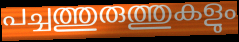
പച്ചത്തുരുത്തുകളും